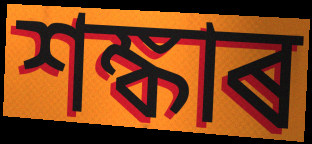
শঙ্কাৰ